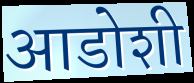
आडोशी